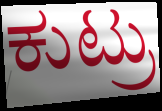
ಕುಟ್ರು